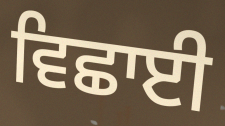
ਵਿਛਾਈ